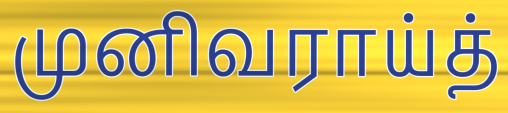
முனிவராய்த்